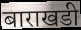
बाराखडी